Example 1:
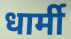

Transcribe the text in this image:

धार्मी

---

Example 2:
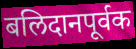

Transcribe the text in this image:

बलिदानपूर्वक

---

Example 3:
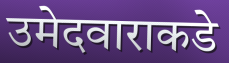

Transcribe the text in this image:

उमेदवाराकडे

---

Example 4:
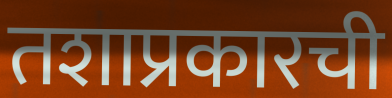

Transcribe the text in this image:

तशाप्रकारची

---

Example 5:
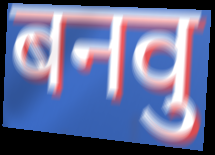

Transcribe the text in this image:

बनवु